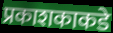
प्रकाशकाकडे